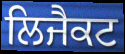
ਲਿਜੈਕਟ